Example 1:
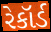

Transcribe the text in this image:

રેકૉર્ડ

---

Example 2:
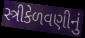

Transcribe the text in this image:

સ્ત્રીકેળવણીનું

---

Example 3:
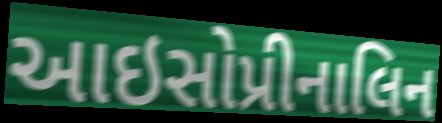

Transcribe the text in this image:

આઇસોપ્રીનાલિન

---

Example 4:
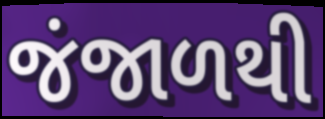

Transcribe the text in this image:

જંજાળથી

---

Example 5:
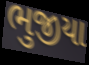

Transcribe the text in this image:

ભુજીયા